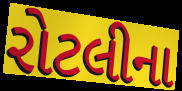
રોટલીના